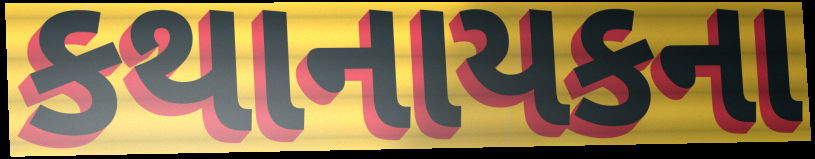
કથાનાયકના